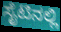
ಸೈಟಿನಲ್ಲಿ